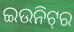
ଇଉନିଟ୍‍ର